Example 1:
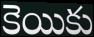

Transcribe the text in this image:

కెయికు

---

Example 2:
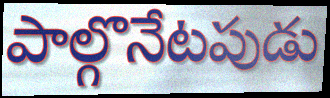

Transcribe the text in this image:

పాల్గొనేటపుడు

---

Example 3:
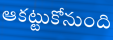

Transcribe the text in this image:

ఆకట్టుకోనుంది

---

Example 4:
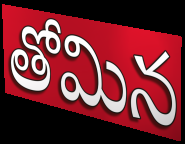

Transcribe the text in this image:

తోమిన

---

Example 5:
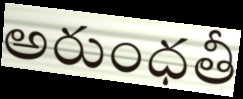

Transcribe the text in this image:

అరుంధతీ